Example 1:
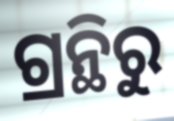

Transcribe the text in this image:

ଗ୍ରନ୍ଥିରୁ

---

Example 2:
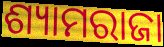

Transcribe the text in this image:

ଶ୍ୟାମରାଜା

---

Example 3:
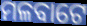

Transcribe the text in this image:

ମଳବାଟେ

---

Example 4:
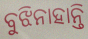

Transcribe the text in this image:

ବୁଝିନାହାନ୍ତି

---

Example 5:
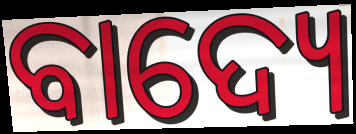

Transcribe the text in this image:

ବାଦ୍ୟେ